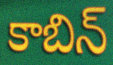
కాబిన్